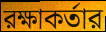
রক্ষাকর্তার